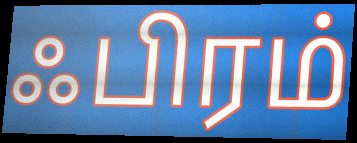
ஃபிரம்